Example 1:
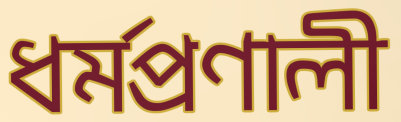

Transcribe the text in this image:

ধর্মপ্রণালী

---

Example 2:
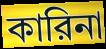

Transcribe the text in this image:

কারিনা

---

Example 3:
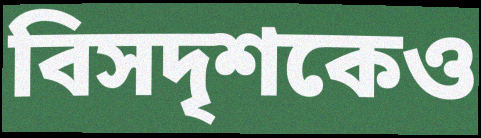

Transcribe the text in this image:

বিসদৃশকেও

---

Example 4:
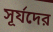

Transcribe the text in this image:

সূর্যদের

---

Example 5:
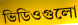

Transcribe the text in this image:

ভিডিওগুলো